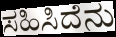
ಸಹಿಸಿದೆನು